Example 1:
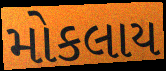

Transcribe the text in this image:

મોકલાય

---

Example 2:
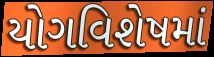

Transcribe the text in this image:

યોગવિશેષમાં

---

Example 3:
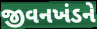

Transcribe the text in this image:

જીવનખંડને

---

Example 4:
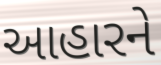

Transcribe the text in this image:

આહારને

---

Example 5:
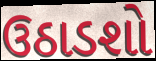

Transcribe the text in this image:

ઉઠાડશો